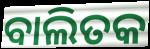
ବାଲିତକ